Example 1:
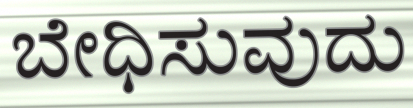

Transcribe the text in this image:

ಬೇಧಿಸುವುದು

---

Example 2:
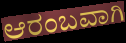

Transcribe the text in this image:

ಆರಂಬವಾಗಿ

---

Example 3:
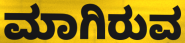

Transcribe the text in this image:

ಮಾಗಿರುವ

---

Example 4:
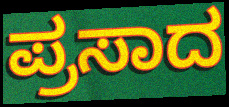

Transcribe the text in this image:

ಪ್ರಸಾದ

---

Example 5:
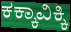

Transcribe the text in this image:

ಕಕ್ಕಾವಿಕ್ಕಿ